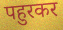
पहुरकर